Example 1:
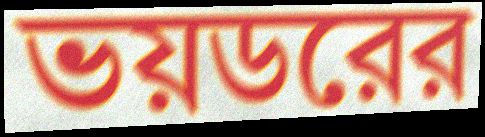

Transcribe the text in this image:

ভয়ডরের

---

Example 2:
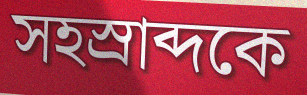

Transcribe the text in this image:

সহস্রাব্দকে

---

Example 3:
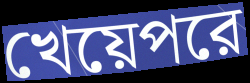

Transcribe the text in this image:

খেয়েপরে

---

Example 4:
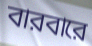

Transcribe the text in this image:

বারবারে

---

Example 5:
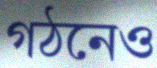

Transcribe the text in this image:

গঠনেও